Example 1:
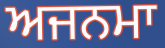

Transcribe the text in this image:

ਅਜਨਮਾ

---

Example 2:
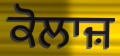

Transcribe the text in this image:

ਕੋਲਾਜ਼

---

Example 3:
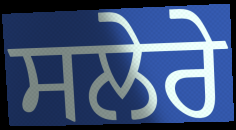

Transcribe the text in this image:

ਸਲੇਰੇ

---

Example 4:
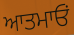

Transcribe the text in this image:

ਆਤਮਾਓਂ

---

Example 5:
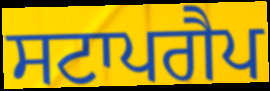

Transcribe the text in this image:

ਸਟਾਪਗੈਪ